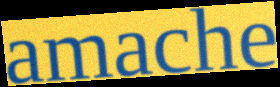
amache